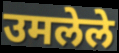
उमलेले